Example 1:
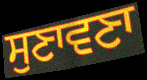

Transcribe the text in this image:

ਸੁਣਾਵਣਾ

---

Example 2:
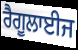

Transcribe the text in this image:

ਰੈਗੂਲਾਈਜ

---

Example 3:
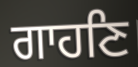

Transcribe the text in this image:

ਗਾਹਣਿ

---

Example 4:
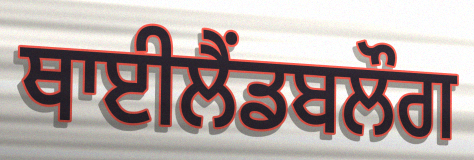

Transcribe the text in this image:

ਥਾਈਲੈਂਡਬਲੌਗ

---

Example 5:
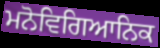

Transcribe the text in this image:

ਮਨੋਵਿਗਿਆਨਿਕ